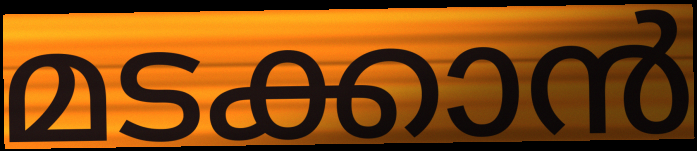
മടക്കാൻ